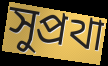
সুপ্রথা